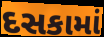
દસકામાં